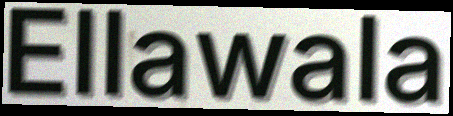
Ellawala